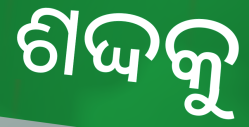
ଶଦ୍ଦକୁ